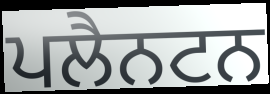
ਪਲੈਨਟਨ